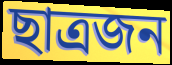
ছাত্ৰজন